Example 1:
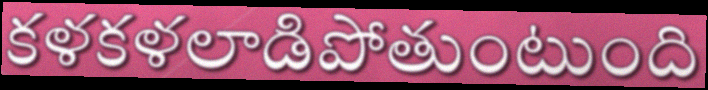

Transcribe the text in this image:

కళకళలాడిపోతుంటుంది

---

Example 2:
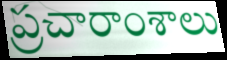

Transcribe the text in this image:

ప్రచారాంశాలు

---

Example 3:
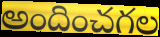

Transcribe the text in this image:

అందించగల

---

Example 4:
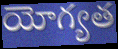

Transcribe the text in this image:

యోగ్యత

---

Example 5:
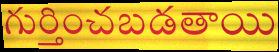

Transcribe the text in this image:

గుర్తించబడతాయి